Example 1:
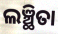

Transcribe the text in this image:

ଲଞ୍ଛିତା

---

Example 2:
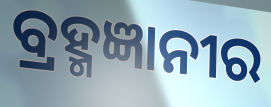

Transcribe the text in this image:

ବ୍ରହ୍ମଜ୍ଞାନୀର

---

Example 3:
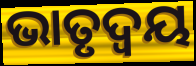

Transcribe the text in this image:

ଭାତୃଦ୍ବୟ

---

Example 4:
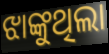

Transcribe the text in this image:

ଝାଙ୍କୁଥିଲା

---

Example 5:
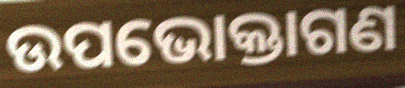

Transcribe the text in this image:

ଉପଭୋକ୍ତାଗଣ